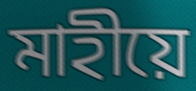
মাহীয়ে